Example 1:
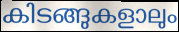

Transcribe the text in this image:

കിടങ്ങുകളാലും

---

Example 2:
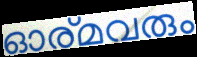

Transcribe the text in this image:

ഓര്മവരും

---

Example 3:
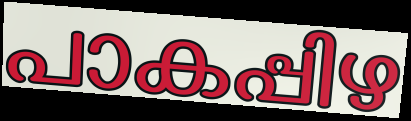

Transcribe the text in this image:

പാകപ്പിഴ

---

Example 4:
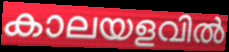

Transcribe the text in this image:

കാലയളവിൽ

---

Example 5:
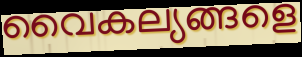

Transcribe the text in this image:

വൈകല്യങ്ങളെ